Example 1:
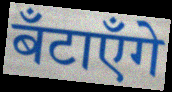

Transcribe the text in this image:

बँटाएँगे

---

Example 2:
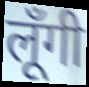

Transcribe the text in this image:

लूँगी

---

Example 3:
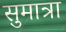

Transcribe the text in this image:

सुमात्रा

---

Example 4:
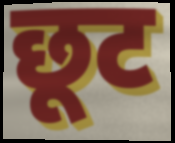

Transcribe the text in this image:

छूट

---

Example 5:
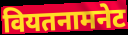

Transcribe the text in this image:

वियतनामनेट